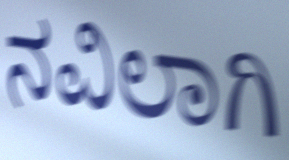
ನವಿಲಾಗಿ